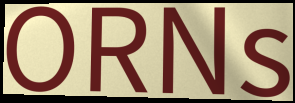
ORNs